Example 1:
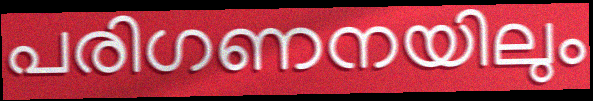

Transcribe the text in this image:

പരിഗണനയിലും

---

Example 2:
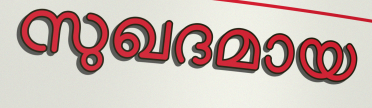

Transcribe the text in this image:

സുഖദമായ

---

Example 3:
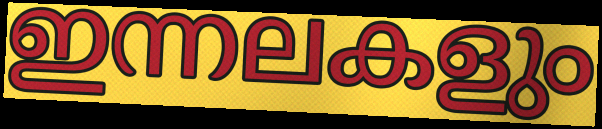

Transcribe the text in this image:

ഇന്നലകളും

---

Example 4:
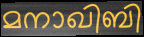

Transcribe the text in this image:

മനാഖിബി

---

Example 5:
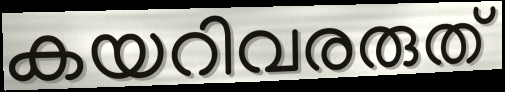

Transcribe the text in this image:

കയറിവരരുത്